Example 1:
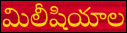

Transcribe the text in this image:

మిలీషియాల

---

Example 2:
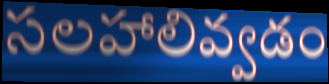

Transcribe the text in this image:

సలహాలివ్వడం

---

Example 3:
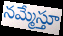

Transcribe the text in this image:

నమ్మేస్తూ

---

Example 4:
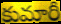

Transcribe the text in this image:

కుమారీ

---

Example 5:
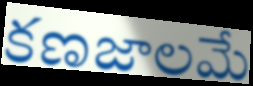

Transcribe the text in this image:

కణజాలమే